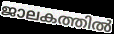
ജാലകത്തിൽ